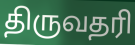
திருவதரி